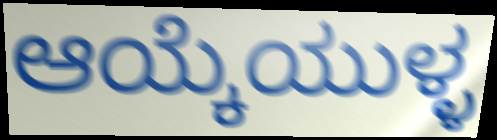
ಆಯ್ಕೆಯುಳ್ಳ